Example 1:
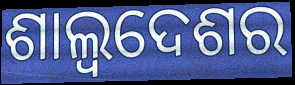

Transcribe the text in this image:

ଶାଲ୍ୱଦେଶର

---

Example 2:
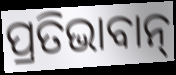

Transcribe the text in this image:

ପ୍ରତିଭାବାନ୍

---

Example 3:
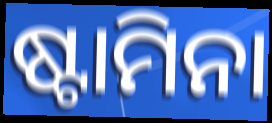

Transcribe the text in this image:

ଷ୍ଟାମିନା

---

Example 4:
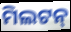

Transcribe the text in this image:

ମିଲଟନ୍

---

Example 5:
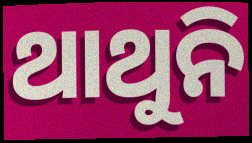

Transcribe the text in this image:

ଥାଥୁନି